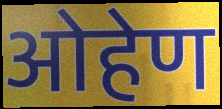
ओहेण